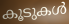
കൂടുകൾ